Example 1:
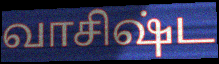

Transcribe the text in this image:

வாசிஷ்ட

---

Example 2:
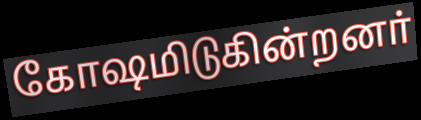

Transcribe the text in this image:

கோஷமிடுகின்றனர்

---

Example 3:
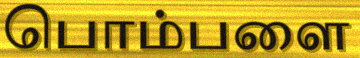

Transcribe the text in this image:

பொம்பளை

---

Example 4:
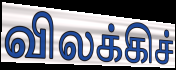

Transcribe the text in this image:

விலக்கிச்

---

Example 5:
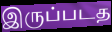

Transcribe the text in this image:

இருப்படத